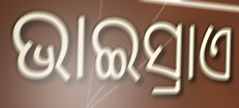
ଭାଇସ୍ରାଏ